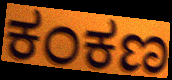
ಕಂಕಣ